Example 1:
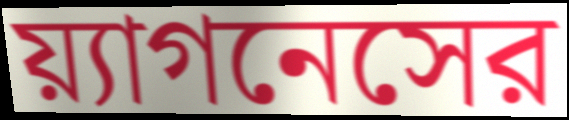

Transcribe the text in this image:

য়্যাগনেসের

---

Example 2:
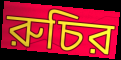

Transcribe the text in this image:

রুচির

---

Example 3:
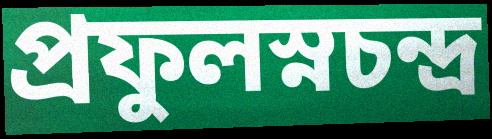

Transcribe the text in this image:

প্রফুলস্নচন্দ্র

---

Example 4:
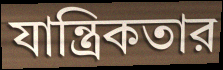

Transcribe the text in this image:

যান্ত্রিকতার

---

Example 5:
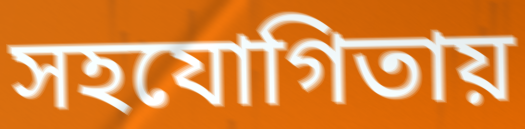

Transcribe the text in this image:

সহযোগিতায়